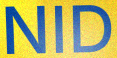
NID